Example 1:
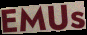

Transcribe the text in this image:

EMUs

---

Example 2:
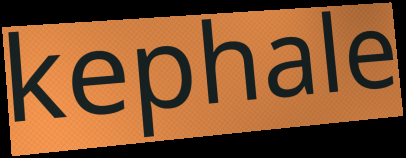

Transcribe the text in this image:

kephale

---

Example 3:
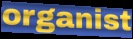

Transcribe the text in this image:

organist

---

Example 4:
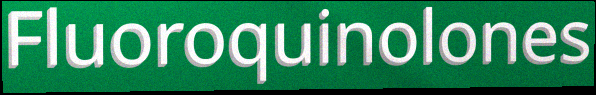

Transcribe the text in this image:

Fluoroquinolones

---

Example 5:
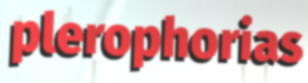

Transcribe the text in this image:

plerophorias